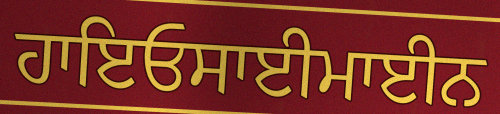
ਹਾਇਓਸਾਈਮਾਈਨ